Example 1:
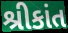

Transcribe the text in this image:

શ્રીકાંત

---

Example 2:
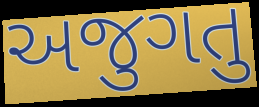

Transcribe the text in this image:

અજુગતુ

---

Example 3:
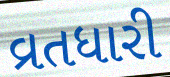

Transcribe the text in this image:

વ્રતધારી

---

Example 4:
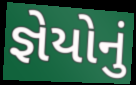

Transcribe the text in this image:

જ્ઞેયોનું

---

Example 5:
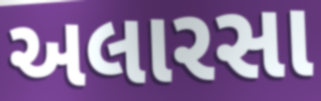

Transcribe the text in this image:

અલારસા